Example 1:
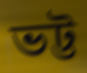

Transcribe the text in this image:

ভট্ট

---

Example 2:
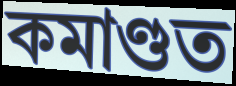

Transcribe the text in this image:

কমাণ্ডত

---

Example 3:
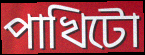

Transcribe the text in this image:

পাখিটো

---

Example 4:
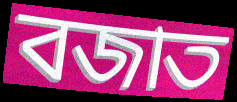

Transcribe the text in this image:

বজাত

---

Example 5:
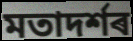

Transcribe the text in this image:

মতাদৰ্শৰ